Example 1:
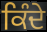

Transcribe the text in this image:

ਕਿੰਦੇ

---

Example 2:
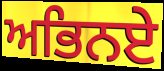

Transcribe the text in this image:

ਅਭਿਨਏ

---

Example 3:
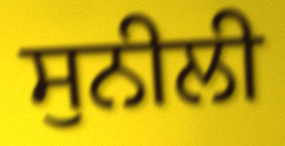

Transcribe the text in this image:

ਸੁਨੀਲੀ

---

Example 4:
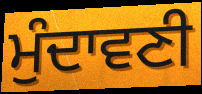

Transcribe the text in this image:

ਮੁੰਦਾਵਣੀ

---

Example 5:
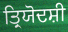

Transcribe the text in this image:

ਤ੍ਰਿਯੋਦਸ਼ੀ